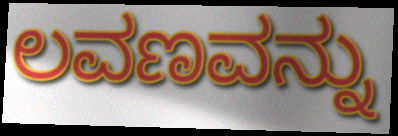
ಲವಣವನ್ನು